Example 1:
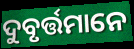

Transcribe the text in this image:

ଦୁବୃର୍ତ୍ତମାନେ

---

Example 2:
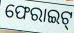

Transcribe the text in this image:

ଫେରାଇଟ୍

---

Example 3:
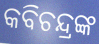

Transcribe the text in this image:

କବିଚନ୍ଦ୍ରଙ୍କ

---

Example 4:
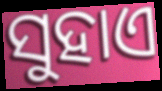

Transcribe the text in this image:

ସୁହାଏ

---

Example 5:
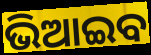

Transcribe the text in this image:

ଭିଆଇବ